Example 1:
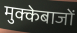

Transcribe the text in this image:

मुक्केबाजों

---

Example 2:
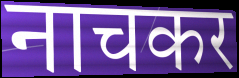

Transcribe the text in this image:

नाचकर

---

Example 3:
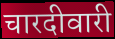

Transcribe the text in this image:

चारदीवारी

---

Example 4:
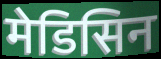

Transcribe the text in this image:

मेडिसिन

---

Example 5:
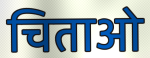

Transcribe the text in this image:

चिताओ